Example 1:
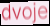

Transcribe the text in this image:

dvoje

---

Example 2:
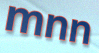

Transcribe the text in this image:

mnn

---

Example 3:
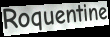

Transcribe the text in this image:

Roquentine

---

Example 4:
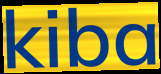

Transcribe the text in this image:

kiba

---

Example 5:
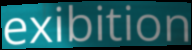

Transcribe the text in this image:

exibition